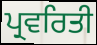
ਪ੍ਰਵਰਿਤੀ